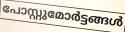
പോസ്റ്റുമോർട്ടങ്ങൾ